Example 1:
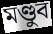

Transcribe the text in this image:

মণ্ডুব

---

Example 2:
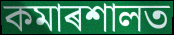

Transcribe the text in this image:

কমাৰশালত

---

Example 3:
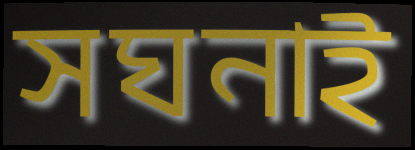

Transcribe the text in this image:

সঘনাই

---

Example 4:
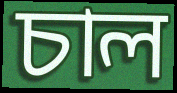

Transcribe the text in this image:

চাল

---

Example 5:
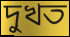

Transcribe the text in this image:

দুখত